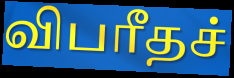
விபரீதச்